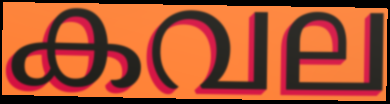
കവല